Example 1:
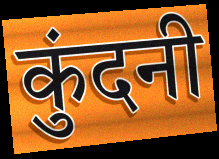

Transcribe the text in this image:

कुंदनी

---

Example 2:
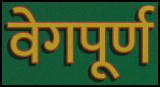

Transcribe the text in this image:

वेगपूर्ण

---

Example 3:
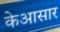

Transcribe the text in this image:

केआसार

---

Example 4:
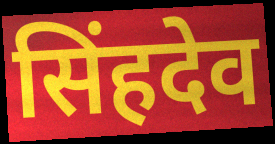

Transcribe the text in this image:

सिंहदेव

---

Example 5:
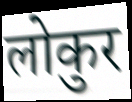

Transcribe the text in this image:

लोकुर